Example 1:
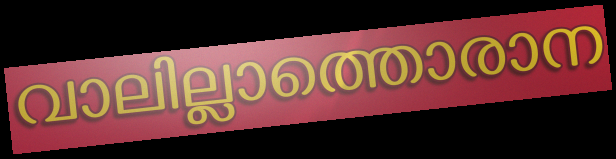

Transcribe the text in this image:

വാലില്ലാത്തൊരാന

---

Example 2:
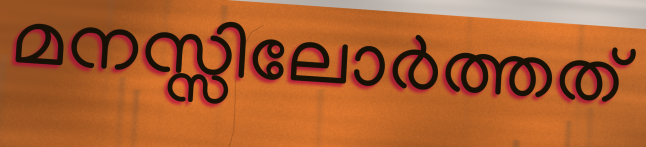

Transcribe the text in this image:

മനസ്സിലോർത്തത്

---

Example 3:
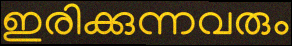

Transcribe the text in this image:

ഇരിക്കുന്നവരും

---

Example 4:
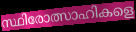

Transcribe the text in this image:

സ്ഥിരോത്സാഹികളെ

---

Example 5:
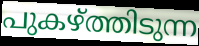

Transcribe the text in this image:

പുകഴ്ത്തിടുന്ന